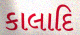
કાલાદિ